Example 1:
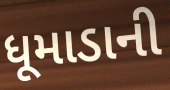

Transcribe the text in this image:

ધૂમાડાની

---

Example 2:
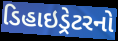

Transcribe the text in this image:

ડિહાઇડ્રેટરનો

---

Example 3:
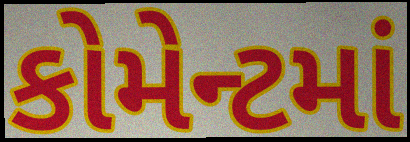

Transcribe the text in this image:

કોમેન્ટમાં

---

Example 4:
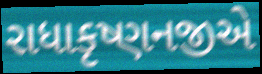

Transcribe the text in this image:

રાધાકૃષ્ણનજીએ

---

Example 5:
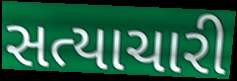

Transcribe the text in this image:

સત્યાચારી